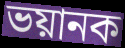
ভয়ানক